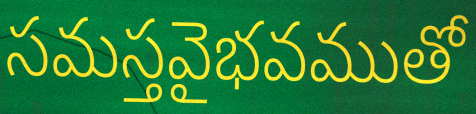
సమస్తవైభవముతో